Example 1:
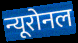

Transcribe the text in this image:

न्यूरोनल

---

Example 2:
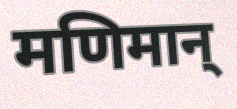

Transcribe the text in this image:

मणिमान्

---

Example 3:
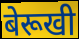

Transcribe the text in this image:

बेरूखी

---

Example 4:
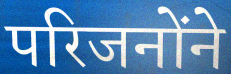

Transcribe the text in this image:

परिजनोंने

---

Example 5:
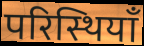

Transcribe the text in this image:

परिस्थियाँ